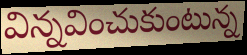
విన్నవించుకుంటున్న